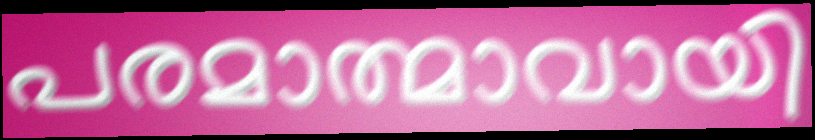
പരമാത്മാവായി